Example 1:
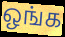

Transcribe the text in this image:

ஒங்க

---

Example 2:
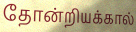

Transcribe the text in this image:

தோன்றியக்கால்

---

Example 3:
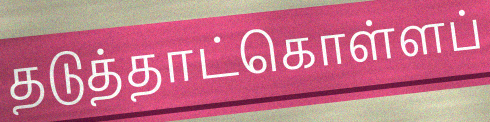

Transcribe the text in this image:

தடுத்தாட்கொள்ளப்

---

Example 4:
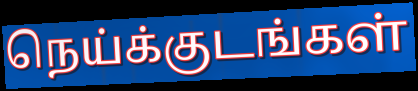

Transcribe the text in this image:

நெய்க்குடங்கள்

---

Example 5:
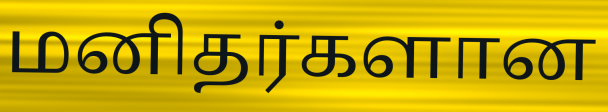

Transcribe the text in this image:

மனிதர்களான